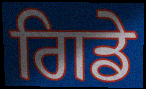
ਗਿਡੇ